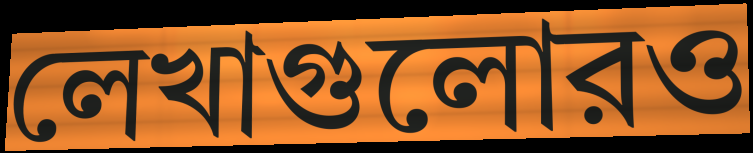
লেখাগুলোরও